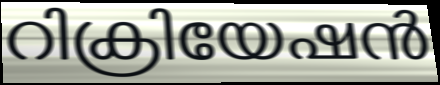
റിക്രിയേഷൻ